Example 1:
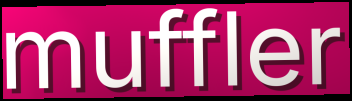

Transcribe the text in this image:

muffler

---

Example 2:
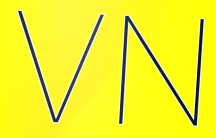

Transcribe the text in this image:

VN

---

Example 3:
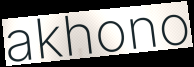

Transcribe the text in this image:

akhono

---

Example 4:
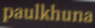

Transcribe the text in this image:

paulkhuna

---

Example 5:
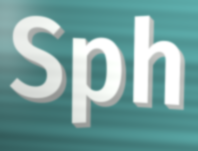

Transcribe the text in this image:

Sph